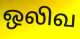
ஒலிவ